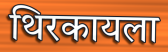
थिरकायला